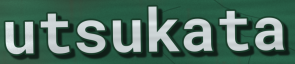
utsukata